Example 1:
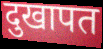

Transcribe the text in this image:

दुखापत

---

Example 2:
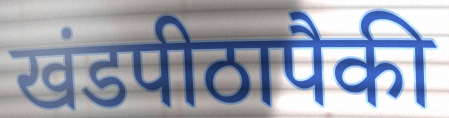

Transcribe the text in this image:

खंडपीठापैकी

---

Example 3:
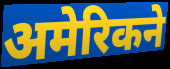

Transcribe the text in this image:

अमेरिकने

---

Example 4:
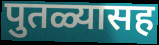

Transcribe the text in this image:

पुतळ्यासह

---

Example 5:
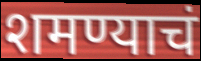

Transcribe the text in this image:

शमण्याचं